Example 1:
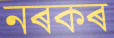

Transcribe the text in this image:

নৰকৰ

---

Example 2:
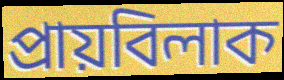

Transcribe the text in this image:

প্ৰায়বিলাক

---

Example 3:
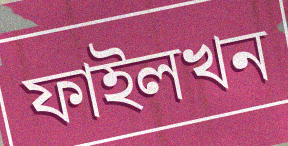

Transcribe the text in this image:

ফাইলখন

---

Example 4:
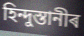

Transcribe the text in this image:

হিন্দুস্তানীৰ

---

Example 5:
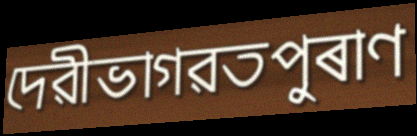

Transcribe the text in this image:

দেৱীভাগৱতপুৰাণ